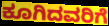
ಕೂಗಿದವರಿಗೆ